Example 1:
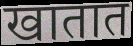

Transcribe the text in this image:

खातात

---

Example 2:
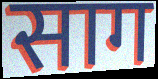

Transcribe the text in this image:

साग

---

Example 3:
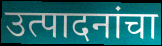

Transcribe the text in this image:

उत्पादनांचा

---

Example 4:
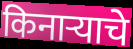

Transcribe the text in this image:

किनाऱ्याचे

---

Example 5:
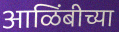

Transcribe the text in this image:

आळिंबीच्या